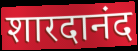
शारदानंद